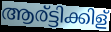
ആര്ട്ടിക്കിള്